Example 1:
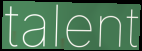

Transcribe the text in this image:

talent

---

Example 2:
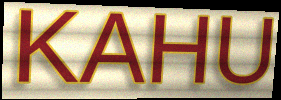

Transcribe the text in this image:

KAHU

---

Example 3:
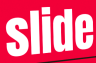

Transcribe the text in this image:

slide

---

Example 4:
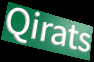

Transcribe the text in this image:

Qirats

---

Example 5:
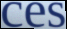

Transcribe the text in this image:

ces